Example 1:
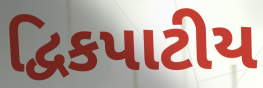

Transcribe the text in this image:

દ્વિકપાટીય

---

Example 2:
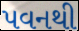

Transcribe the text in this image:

પવનથી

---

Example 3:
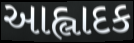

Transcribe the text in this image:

આહ્લાદક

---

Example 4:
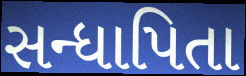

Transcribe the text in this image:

સન્ધાપિતા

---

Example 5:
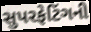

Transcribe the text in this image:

સુપરફેટિંગની